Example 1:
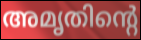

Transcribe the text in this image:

അമൃതിന്റെ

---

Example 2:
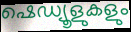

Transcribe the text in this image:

ഷെഡ്യൂളുകളും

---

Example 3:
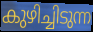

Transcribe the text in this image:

കുഴിച്ചിടുന്ന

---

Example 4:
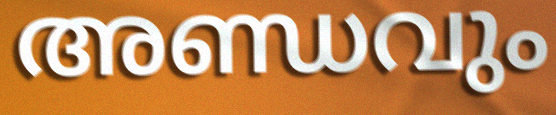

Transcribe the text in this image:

അണ്ഡവും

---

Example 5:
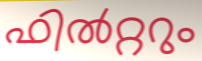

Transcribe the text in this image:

ഫിൽറ്ററും